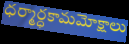
ధర్మార్ధకామమోక్షాలు